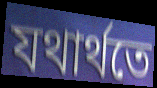
যথাৰ্থতে